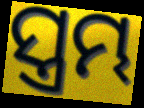
ସ୍ତ୍ରମ୍ଭ